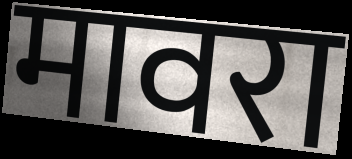
मावरा